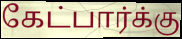
கேட்பார்க்கு